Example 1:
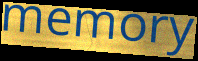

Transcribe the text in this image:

memory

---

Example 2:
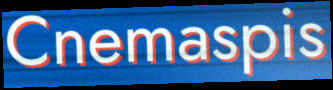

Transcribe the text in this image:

Cnemaspis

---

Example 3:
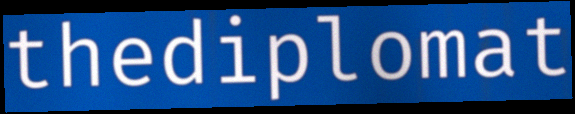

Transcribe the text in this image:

thediplomat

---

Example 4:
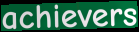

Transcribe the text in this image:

achievers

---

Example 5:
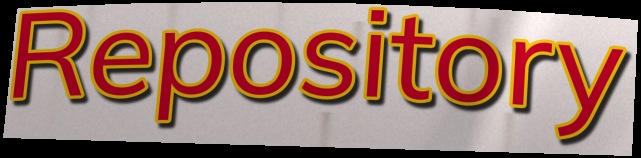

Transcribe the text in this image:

Repository